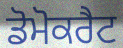
ਡੋਮੋਕਰੈਟ